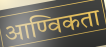
आण्विकता